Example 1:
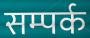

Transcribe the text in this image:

सम्पर्क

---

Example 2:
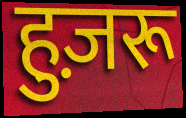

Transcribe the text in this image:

हुज़रू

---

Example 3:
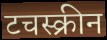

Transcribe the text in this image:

टचस्क्रीन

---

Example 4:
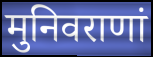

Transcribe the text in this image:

मुनिवराणां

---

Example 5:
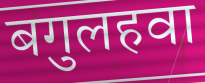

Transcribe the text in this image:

बगुलहवा